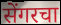
सेंगरचा